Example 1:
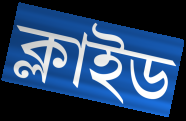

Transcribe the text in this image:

ক্লাইড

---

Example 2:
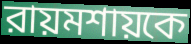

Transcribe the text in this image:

রায়মশায়কে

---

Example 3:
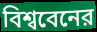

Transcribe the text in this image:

বিশ্ববেনের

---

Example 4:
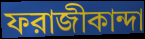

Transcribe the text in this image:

ফরাজীকান্দা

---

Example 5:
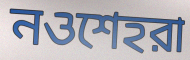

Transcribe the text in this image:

নওশেহরা